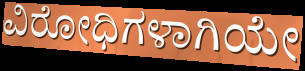
ವಿರೋಧಿಗಳಾಗಿಯೇ